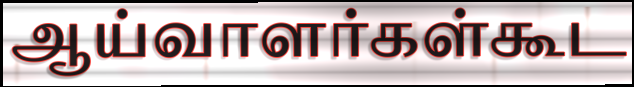
ஆய்வாளர்கள்கூட